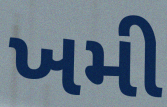
ખમી